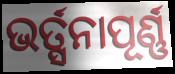
ଭର୍ତ୍ସନାପୂର୍ଣ୍ଣ